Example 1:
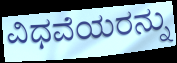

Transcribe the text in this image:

ವಿಧವೆಯರನ್ನು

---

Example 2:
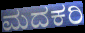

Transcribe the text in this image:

ಮದಕರಿ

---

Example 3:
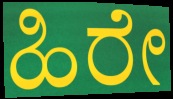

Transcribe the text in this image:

ಹಿರೇ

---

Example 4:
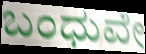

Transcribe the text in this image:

ಬಂಧುವೇ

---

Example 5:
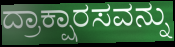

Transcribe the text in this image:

ದ್ರಾಕ್ಷಾರಸವನ್ನು